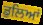
ਡੁਲਿਆਂ